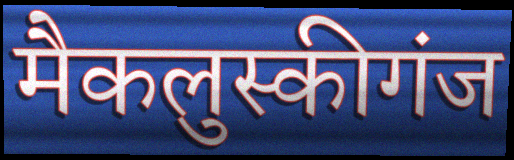
मैकलुस्कीगंज